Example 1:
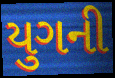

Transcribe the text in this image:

યુગની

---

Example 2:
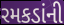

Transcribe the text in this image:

રમકડાંની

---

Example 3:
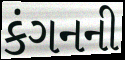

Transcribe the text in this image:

કંગનની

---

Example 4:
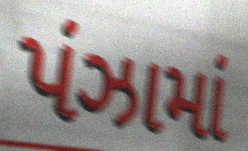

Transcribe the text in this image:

પંઝામાં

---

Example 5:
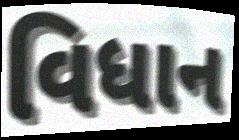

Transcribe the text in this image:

વિધાન